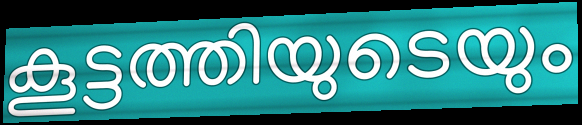
കൂട്ടത്തിയുടെയും